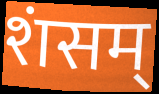
शंसम्